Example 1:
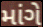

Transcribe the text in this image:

માંગે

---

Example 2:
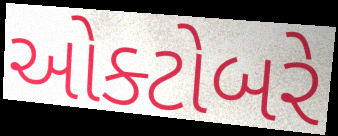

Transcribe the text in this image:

ઓક્ટોબરે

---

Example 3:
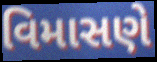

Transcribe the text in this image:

વિમાસણે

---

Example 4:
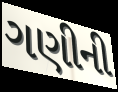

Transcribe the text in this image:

ગણીની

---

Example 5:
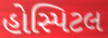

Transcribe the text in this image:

હોસ્પિટલ